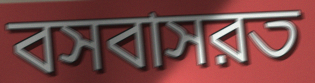
বসবাসরত